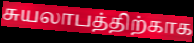
சுயலாபத்திற்காக